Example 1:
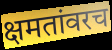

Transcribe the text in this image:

क्षमतांवरच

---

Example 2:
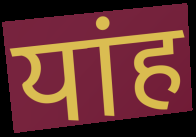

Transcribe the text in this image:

यांह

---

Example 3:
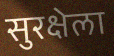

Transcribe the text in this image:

सुरक्षेला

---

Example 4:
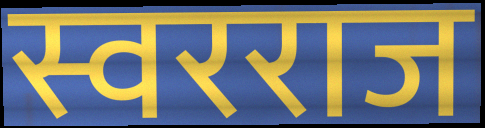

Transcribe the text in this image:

स्वरराज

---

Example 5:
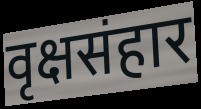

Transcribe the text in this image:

वृक्षसंहार